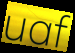
uaf